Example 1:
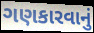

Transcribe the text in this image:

ગણકારવાનું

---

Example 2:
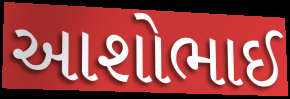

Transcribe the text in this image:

આશોભાઈ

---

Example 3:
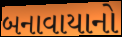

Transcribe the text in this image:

બનાવાયાનો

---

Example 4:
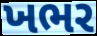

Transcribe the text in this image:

ખભર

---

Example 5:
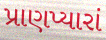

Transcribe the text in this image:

પ્રાણપ્યારાં